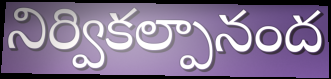
నిర్వికల్పానంద